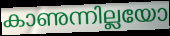
കാണുന്നില്ലയോ